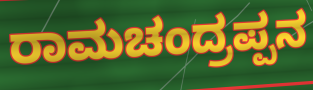
ರಾಮಚಂದ್ರಪ್ಪನ